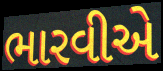
ભારવીએ